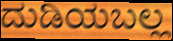
ದುಡಿಯಬಲ್ಲ